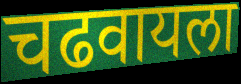
चढवायला